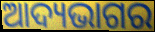
ଆଦ୍ୟଭାଗର